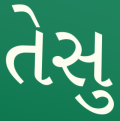
તેસુ